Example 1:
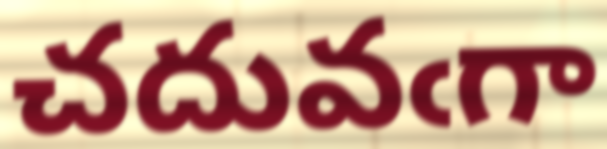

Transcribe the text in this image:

చదువఁగా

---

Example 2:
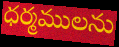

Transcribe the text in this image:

ధర్మములను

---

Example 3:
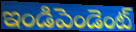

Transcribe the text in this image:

ఇండిపెండెంట్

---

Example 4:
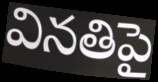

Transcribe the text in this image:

వినతిపై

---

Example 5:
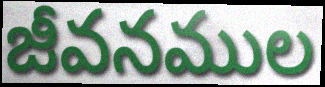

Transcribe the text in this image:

జీవనముల